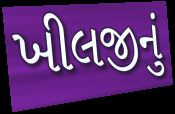
ખીલજીનું